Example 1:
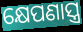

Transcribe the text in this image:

କ୍ଷେପଣାସ୍ତ୍ର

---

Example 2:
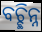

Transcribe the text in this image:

ବଚ୍ଛିନ୍ନ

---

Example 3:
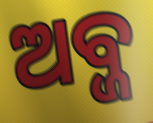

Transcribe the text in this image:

ଅବ୍ଜ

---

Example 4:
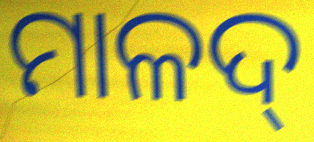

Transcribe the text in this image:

ମାଳଦ୍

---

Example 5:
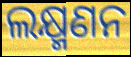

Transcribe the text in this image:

ଲକ୍ଷ୍ମଣନ